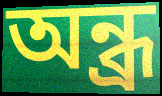
অন্ধ্ৰ